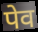
पेव